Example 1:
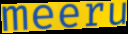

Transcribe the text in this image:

meeru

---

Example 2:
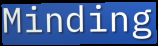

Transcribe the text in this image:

Minding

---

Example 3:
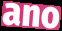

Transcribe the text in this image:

ano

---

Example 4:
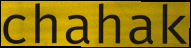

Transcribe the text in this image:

chahak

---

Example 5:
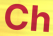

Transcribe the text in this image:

Ch